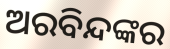
ଅରବିନ୍ଦଙ୍କର